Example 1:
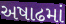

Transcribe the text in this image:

અષાઢમાં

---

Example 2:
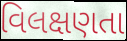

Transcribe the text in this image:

વિલક્ષણતા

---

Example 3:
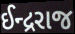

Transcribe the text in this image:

ઈન્દ્રરાજ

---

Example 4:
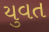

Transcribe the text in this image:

યુવત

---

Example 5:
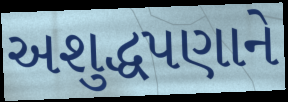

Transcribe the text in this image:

અશુદ્ધપણાને